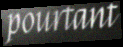
pourtant